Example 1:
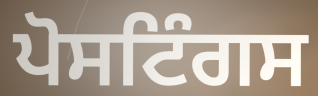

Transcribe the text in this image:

ਪੋਸਟਿੰਗਸ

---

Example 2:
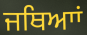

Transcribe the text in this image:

ਜਥਿਆਾਂ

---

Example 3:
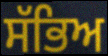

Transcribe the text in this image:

ਸੱਭਿਅ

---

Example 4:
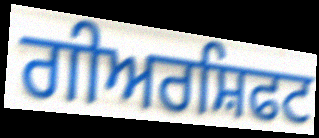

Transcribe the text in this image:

ਗੀਅਰਸ਼ਿਫਟ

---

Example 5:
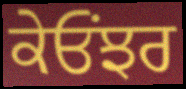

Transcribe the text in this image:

ਕੇਓਂਝਰ